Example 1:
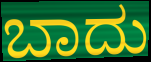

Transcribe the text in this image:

ಬಾದು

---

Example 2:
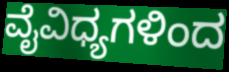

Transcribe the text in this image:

ವೈವಿಧ್ಯಗಳಿಂದ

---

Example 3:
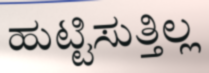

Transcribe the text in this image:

ಹುಟ್ಟಿಸುತ್ತಿಲ್ಲ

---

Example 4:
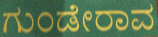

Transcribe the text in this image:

ಗುಂಡೇರಾವ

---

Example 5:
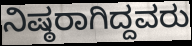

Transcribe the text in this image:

ನಿಷ್ಠರಾಗಿದ್ದವರು